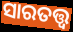
ସାରତତ୍ତ୍ୱ